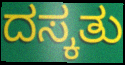
ದಸ್ಕತು